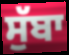
ਸੁੱਬਾ